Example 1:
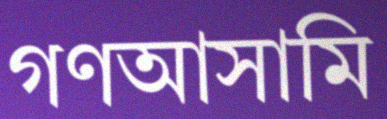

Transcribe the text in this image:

গণআসামি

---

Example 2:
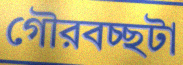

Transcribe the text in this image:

গৌরবচ্ছটা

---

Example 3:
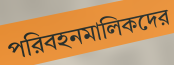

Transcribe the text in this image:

পরিবহনমালিকদের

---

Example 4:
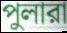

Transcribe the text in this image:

পুলারা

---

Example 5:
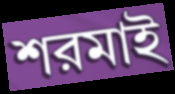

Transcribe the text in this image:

শরমাই